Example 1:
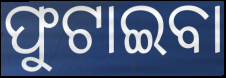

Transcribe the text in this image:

ଫୁଟାଇବା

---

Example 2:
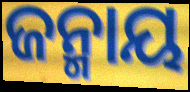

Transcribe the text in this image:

ଜନ୍ମାୟ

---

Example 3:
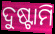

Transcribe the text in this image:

ଦୁଷ୍ଟାମି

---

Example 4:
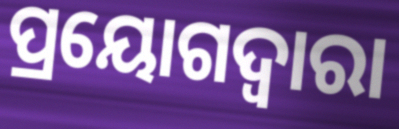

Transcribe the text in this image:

ପ୍ରୟୋଗଦ୍ଵାରା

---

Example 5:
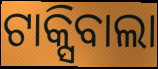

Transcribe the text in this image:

ଟାକ୍ସିବାଲା